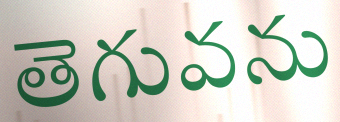
తెగువను